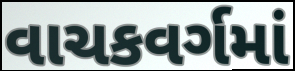
વાચકવર્ગમાં